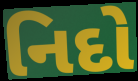
નિદો